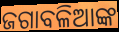
ଜଗାବଳିଆଙ୍କ